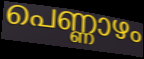
പെണ്ണാഴം